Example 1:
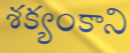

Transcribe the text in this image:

శక్యంకాని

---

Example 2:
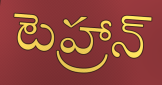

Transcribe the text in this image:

టెహ్రాన్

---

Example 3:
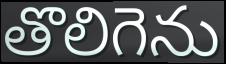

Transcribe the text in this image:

తొలిగెను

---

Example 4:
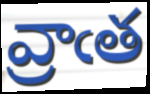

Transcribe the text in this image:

వ్రాఁత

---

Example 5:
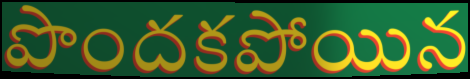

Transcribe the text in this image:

పొందకపోయిన